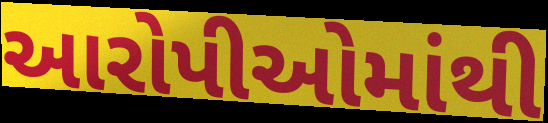
આરોપીઓમાંથી